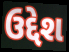
ઉદ્દેશ